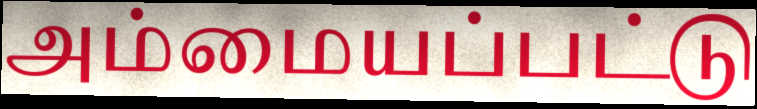
அம்மையப்பட்டு